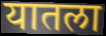
यातला